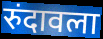
रुंदावला